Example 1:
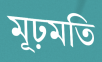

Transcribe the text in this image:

মূঢ়মতি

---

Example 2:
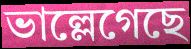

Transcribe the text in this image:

ভাল্লেগেছে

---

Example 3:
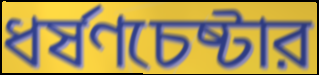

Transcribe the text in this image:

ধর্ষণচেষ্টার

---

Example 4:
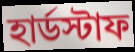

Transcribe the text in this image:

হার্ডস্টাফ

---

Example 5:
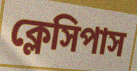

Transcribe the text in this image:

ক্লেসিপাস